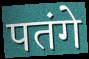
पतंगे